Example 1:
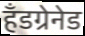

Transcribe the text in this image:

हॅंडग्रेनेड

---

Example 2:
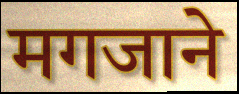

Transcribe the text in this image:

मगजाने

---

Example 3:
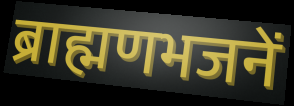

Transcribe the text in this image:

ब्राह्मणभजनें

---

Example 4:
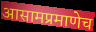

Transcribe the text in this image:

आसामप्रमाणेच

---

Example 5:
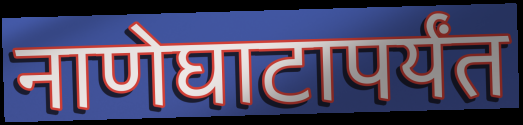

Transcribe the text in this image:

नाणेघाटापर्यंत